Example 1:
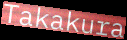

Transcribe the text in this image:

Takakura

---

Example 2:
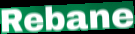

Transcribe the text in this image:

Rebane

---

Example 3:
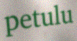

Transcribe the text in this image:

petulu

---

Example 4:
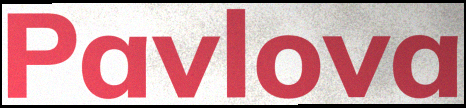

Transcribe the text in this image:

Pavlova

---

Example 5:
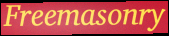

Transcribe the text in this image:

Freemasonry